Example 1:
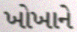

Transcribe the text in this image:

ખોખાને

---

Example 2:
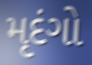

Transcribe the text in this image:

મૃદંગો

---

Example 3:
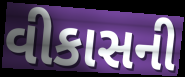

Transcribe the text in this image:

વીકાસની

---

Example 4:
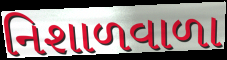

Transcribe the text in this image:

નિશાળવાળા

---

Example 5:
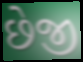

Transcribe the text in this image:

છેજી